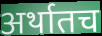
अर्थातच